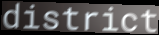
district